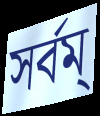
সর্বম্